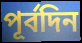
পূর্বদিন